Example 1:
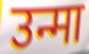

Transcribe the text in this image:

उन्मा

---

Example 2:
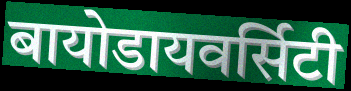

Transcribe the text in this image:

बायोडायवर्सिटी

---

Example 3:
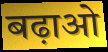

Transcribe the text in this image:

बढ़ाओ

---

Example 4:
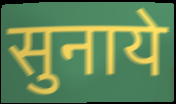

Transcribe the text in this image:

सुनाये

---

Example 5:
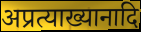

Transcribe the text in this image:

अप्रत्याख्यानादि